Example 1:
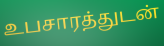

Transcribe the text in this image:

உபசாரத்துடன்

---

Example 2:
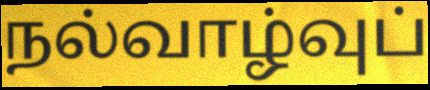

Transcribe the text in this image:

நல்வாழ்வுப்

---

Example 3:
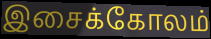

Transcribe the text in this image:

இசைக்கோலம்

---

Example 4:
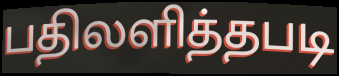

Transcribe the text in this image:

பதிலளித்தபடி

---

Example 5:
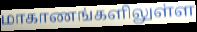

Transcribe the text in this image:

மாகாணங்களிலுள்ள